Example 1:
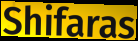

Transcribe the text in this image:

Shifaras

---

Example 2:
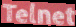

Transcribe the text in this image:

Telnet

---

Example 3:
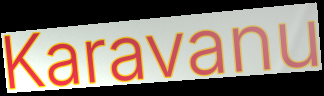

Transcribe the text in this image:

Karavanu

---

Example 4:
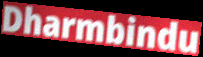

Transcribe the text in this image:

Dharmbindu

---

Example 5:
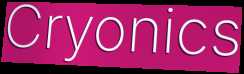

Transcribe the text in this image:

Cryonics